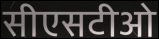
सीएसटीओ